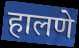
हालणे